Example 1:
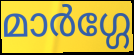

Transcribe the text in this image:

മാർഗ്ഗേ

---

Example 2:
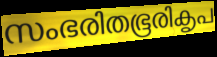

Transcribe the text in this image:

സംഭരിതഭൂരികൃപ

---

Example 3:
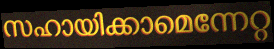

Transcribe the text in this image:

സഹായിക്കാമെന്നേറ്റ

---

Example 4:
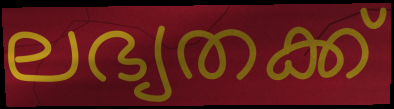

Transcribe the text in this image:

ലഭ്യതക്ക്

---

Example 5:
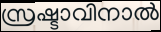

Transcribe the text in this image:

സ്രഷ്ടാവിനാൽ